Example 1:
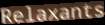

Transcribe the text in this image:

Relaxants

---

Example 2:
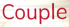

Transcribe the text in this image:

Couple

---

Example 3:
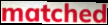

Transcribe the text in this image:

matched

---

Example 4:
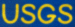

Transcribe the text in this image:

USGS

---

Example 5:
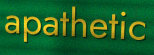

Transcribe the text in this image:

apathetic